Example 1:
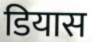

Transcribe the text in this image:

डियास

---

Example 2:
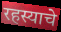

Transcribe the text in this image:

रहस्याचे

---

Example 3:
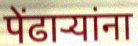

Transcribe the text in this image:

पेंढाऱ्यांना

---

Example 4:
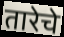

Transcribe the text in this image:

तारेचे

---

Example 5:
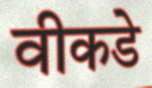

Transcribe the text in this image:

वीकडे